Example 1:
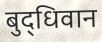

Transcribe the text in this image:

बुद्धिवान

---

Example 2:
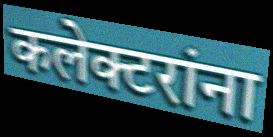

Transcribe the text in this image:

कलेक्टरांना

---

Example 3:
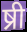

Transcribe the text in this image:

ष्री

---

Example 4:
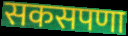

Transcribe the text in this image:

सकसपणा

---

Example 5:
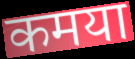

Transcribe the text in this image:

कमया